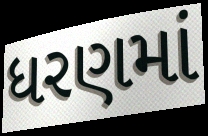
ધરણમાં